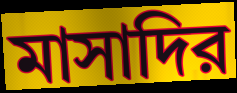
মাসাদির